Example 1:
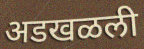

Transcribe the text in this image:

अडखळली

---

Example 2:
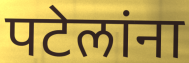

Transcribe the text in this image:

पटेलांना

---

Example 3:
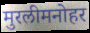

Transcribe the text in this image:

मुरलीमनोहर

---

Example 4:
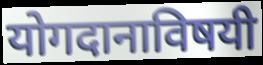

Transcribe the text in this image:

योगदानाविषयी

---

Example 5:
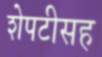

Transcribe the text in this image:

शेपटीसह